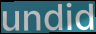
undid